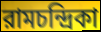
রামচন্দ্রিকা